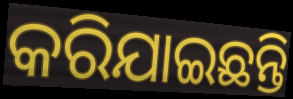
କରିଯାଇଛନ୍ତି